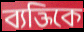
ব্যক্তিকে